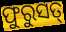
ଫୁରୁସତ୍